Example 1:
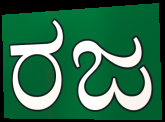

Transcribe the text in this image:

ರಜ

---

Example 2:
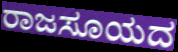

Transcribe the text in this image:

ರಾಜಸೂಯದ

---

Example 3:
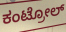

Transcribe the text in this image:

ಕಂಟ್ರೋಲ್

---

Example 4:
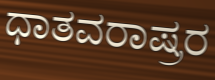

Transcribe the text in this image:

ಧಾತವರಾಷ್ರರ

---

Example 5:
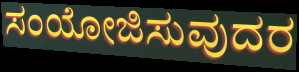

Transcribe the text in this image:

ಸಂಯೋಜಿಸುವುದರ